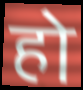
हो